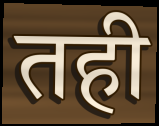
तही